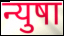
न्युषा